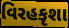
વિરહકૃશા